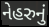
નેહરુનું